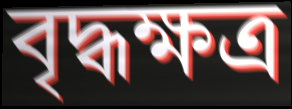
বৃদ্ধক্ষত্র